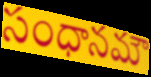
సంధానమౌ